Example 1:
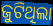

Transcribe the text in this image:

ଜୁଟିଥିଲା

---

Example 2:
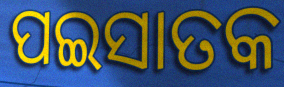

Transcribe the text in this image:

ପଇସାତକ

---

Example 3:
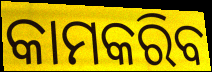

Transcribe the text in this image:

କାମକରିବ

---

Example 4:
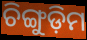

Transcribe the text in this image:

ଚିଙ୍ଗୁଡ଼ିମ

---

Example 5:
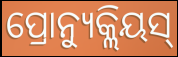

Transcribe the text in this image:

ପ୍ରୋନ୍ୟୁକ୍ଲିୟସ୍